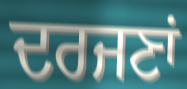
ਦਰਜਣਾਂ